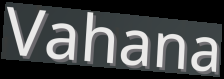
Vahana